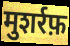
मुशर्रफ़